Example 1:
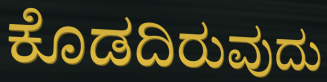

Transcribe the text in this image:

ಕೊಡದಿರುವುದು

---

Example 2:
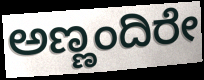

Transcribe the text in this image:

ಅಣ್ಣಂದಿರೇ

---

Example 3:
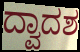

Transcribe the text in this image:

ದ್ವಾದಶ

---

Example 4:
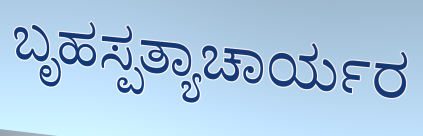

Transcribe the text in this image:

ಬೃಹಸ್ಪತ್ಯಾಚಾರ್ಯರ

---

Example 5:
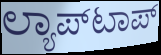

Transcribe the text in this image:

ಲ್ಯಾಪ್‍ಟಾಪ್